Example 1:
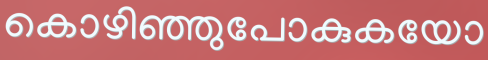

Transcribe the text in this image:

കൊഴിഞ്ഞുപോകുകയോ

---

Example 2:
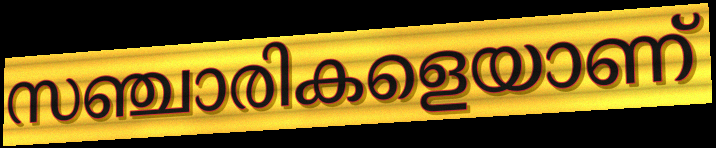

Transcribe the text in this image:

സഞ്ചാരികളെയാണ്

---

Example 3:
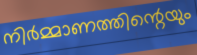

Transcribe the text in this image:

നിർമ്മാണത്തിന്റെയും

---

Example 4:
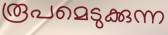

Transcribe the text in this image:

രൂപമെടുക്കുന്ന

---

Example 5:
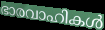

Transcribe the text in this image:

ഭാരവാഹികൾ